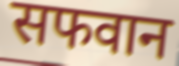
सफवान